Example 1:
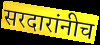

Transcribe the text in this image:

सरदारांनीच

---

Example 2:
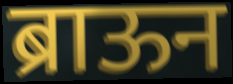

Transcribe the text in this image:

ब्राऊन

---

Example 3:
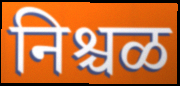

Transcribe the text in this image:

निश्चळ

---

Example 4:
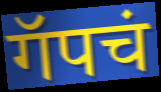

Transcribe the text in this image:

गॅपचं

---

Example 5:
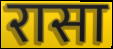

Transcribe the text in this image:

रासा